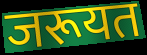
जरूयत